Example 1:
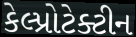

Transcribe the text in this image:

કેલ્પ્રોટેક્ટીન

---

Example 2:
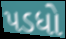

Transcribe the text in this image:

પડધો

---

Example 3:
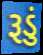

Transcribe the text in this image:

રૂડું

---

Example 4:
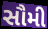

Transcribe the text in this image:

સૌમી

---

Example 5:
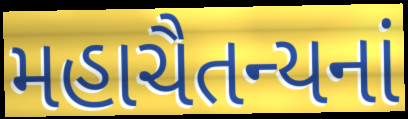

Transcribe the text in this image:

મહાચૈતન્યનાં